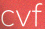
cvf